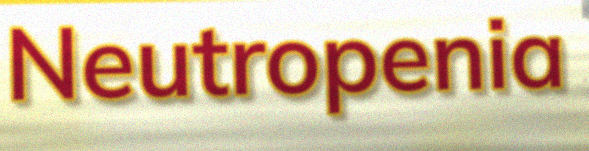
Neutropenia